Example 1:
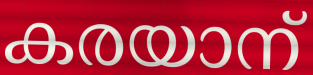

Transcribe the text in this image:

കരയാന്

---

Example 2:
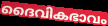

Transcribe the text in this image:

ദൈവികഭാവം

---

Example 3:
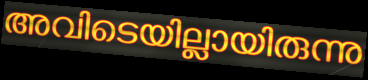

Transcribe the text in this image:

അവിടെയില്ലായിരുന്നു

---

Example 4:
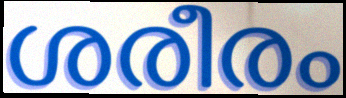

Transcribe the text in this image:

ശരീരം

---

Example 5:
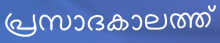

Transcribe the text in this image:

പ്രസാദകാലത്ത്